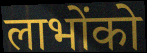
लाभोंको